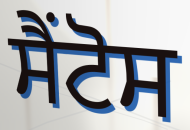
ਸੈਂਟੋਸ